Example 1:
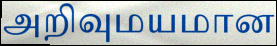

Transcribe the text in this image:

அறிவுமயமான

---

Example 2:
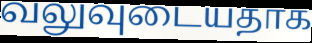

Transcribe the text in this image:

வலுவுடையதாக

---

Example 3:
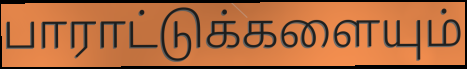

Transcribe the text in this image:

பாராட்டுக்களையும்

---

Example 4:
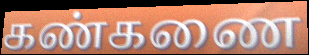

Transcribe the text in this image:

கண்கணை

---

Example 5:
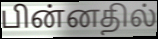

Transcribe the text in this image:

பின்னதில்